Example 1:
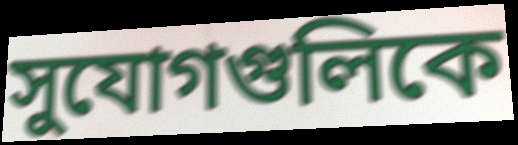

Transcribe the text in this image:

সুযোগগুলিকে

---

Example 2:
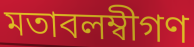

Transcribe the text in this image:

মতাবলম্বীগণ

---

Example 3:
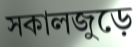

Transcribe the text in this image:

সকালজুড়ে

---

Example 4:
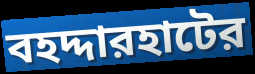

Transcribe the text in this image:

বহদ্দারহাটের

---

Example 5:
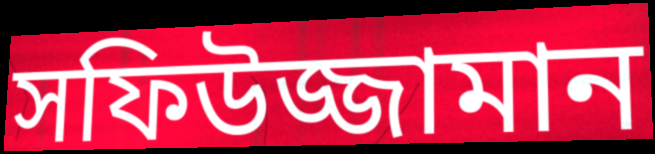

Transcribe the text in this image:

সফিউজ্জামান